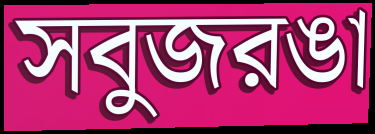
সবুজরঙা